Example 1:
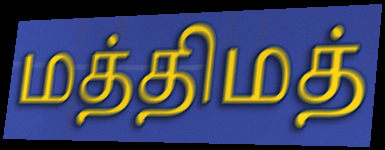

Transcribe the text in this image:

மத்திமத்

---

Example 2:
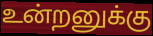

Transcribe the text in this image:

உன்றனுக்கு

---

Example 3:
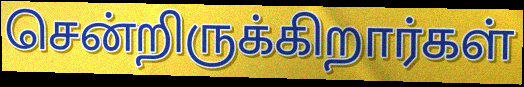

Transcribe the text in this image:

சென்றிருக்கிறார்கள்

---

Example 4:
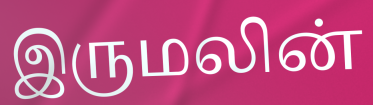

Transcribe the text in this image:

இருமலின்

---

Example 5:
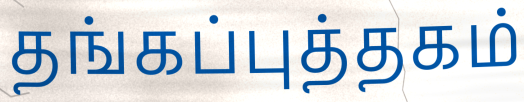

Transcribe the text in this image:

தங்கப்புத்தகம்